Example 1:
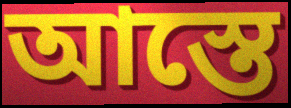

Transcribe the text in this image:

আস্তে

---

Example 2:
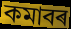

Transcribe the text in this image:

কমাবৰ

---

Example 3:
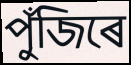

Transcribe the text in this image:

পুঁজিৰে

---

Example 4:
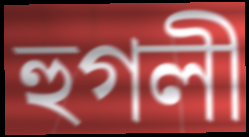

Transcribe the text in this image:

হুগলী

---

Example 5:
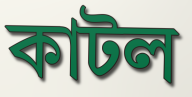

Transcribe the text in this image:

কাটল